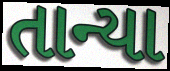
તાન્યા